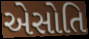
એસોતિ